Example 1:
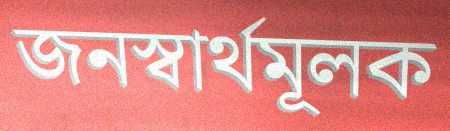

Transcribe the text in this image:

জনস্বার্থমূলক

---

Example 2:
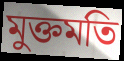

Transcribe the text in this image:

মুক্তমতি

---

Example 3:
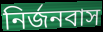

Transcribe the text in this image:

নির্জনবাস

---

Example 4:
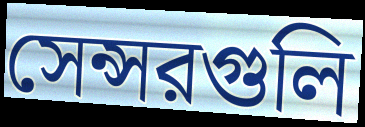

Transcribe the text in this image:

সেন্সরগুলি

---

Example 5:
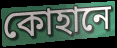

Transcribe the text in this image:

কোহানে